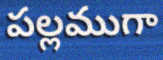
పల్లముగా